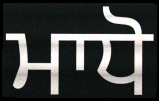
ਮਾਧੋ